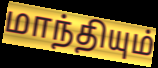
மாந்தியும்